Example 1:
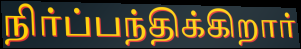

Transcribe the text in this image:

நிர்ப்பந்திக்கிறார்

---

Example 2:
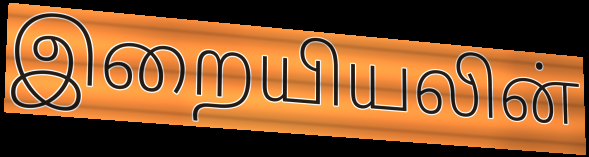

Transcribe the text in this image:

இறையியலின்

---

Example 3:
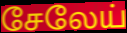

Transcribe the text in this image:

சேலேய்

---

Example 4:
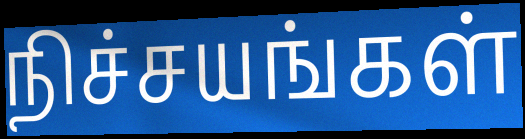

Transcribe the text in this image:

நிச்சயங்கள்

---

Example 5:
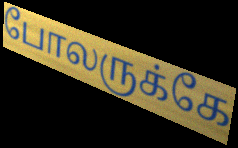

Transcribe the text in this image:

போலருக்கே